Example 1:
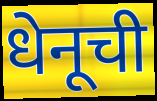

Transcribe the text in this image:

धेनूची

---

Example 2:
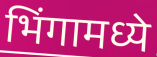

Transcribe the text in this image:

भिंगामध्ये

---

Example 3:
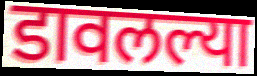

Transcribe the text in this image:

डावलल्या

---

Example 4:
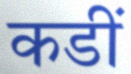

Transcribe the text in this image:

कडीं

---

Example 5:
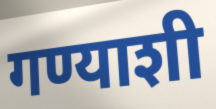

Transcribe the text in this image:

गण्याशी